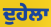
ਦੁਹੇਲਾ